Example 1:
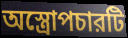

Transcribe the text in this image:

অস্ত্রোপচারটি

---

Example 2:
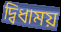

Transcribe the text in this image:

দ্বিধাময়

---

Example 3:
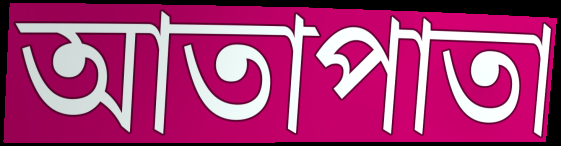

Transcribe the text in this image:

আতাপাতা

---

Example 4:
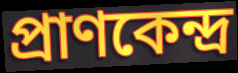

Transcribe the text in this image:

প্রাণকেন্দ্র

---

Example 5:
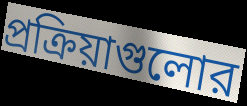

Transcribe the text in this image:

প্রক্রিয়াগুলোর